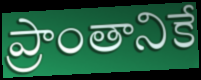
ప్రాంతానికే